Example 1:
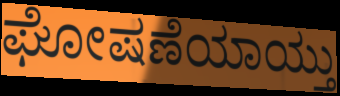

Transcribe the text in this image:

ಘೋಷಣೆಯಾಯ್ತು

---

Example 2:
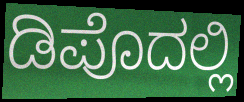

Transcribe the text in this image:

ಡಿಪೊದಲ್ಲಿ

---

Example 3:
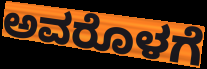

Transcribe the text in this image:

ಅವರೊಳಗೆ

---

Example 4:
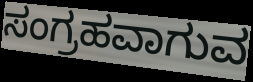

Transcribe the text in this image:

ಸಂಗ್ರಹವಾಗುವ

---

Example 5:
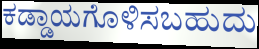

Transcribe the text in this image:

ಕಡ್ಡಾಯಗೊಳಿಸಬಹುದು